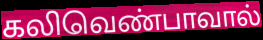
கலிவெண்பாவால்